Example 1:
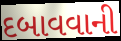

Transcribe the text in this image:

દબાવવાની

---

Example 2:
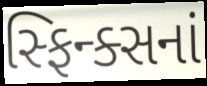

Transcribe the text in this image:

સ્ફિન્ક્સનાં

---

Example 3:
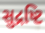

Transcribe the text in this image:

સુદ્રષ્ટિ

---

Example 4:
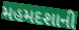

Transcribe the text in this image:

મહમદશાની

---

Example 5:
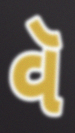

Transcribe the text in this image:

વૅ